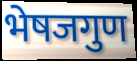
भेषजगुण